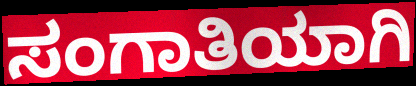
ಸಂಗಾತಿಯಾಗಿ